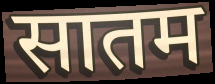
सातम